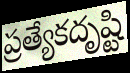
ప్రత్యేకదృష్టి